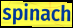
spinach